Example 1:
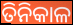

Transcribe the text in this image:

ତିନିକାଳ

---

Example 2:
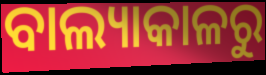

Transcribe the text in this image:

ବାଲ୍ୟାକାଳରୁ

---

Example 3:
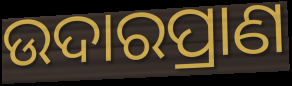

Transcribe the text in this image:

ଉଦାରପ୍ରାଣ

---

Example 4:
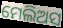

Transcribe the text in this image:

ମେଲିଅସ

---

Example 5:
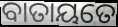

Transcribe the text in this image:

ବାତାୟତେ